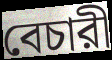
বেচারী